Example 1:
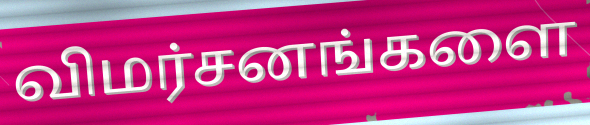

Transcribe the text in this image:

விமர்சனங்களை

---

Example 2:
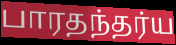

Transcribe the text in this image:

பாரதந்தர்ய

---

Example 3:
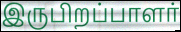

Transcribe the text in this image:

இருபிறப்பாளர்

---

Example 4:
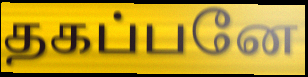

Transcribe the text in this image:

தகப்பனே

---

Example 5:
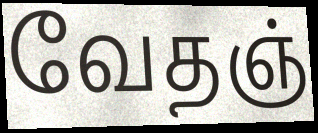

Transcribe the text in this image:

வேதஞ்